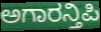
ಅಗಾರನ್ತಿಪಿ